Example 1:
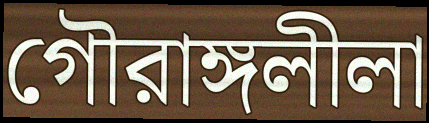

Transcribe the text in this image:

গৌরাঙ্গলীলা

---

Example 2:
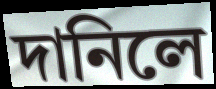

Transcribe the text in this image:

দানিলে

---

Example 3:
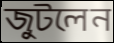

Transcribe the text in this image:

জুটলেন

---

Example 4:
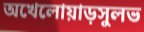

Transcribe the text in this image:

অখেলোয়াড়সুলভ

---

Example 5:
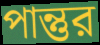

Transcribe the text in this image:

পান্তুর